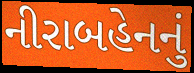
નીરાબહેનનું